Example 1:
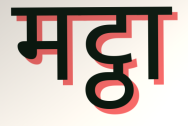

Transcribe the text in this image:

मट्ठा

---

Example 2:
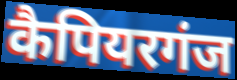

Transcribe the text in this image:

कैपियरगंज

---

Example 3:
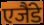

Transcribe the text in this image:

एजैंडे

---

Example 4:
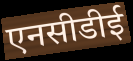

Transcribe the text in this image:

एनसीडीई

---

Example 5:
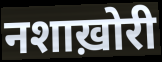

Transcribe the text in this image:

नशाख़ोरी